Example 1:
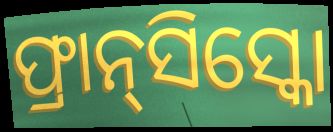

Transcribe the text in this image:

ଫ୍ରାନ୍‌ସିସ୍କୋ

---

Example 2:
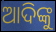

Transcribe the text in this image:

ଆଦିଙ୍କୁ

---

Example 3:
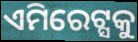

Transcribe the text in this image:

ଏମିରେଟ୍ସକୁ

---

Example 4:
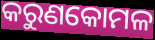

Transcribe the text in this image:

କରୁଣକୋମଳ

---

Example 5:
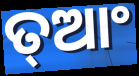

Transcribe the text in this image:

ତ୍ଆଂ